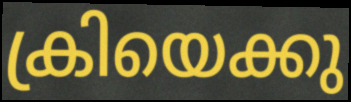
ക്രിയെക്കു